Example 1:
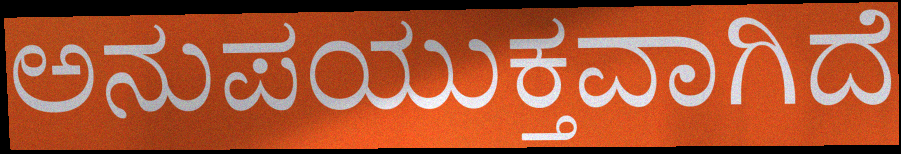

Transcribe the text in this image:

ಅನುಪಯುಕ್ತವಾಗಿದೆ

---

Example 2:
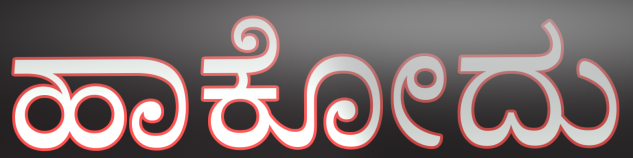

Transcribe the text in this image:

ಹಾಕೋದು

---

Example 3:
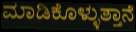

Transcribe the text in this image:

ಮಾಡಿಕೊಳ್ಳುತ್ತಾನೆ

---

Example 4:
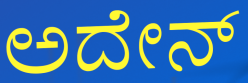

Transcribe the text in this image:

ಅದೇನ್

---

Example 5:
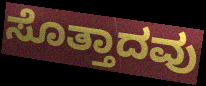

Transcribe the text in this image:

ಸೊತ್ತಾದವು